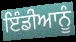
ਇੰਡੀਆਨੂੰ